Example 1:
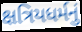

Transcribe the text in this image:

ક્ષત્રિયધર્મનું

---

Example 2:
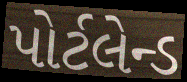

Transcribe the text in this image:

પોર્ટલેન્ડ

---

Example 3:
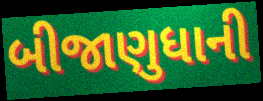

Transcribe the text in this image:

બીજાણુધાની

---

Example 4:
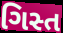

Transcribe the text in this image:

ગિસ્ત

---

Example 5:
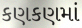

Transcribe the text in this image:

કણકણમાં